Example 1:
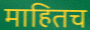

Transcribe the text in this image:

माहितच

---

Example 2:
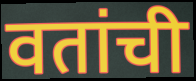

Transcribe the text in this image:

वतांची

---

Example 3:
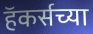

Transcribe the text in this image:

हॅकर्सच्या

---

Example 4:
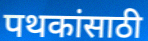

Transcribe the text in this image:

पथकांसाठी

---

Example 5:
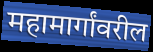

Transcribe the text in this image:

महामार्गांवरील